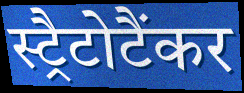
स्ट्रैटोटैंकर